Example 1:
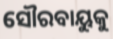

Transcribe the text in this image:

ସୌରବାୟୁକୁ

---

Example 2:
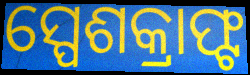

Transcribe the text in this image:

ସ୍ପେଶକ୍ରାଫ୍ଟ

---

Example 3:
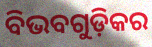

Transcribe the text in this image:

ବିଭବଗୁଡ଼ିକର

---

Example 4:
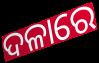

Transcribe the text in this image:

ଦଳାରେ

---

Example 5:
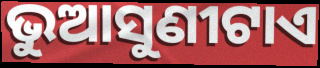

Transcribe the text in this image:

ଭୁଆସୁଣୀଟାଏ